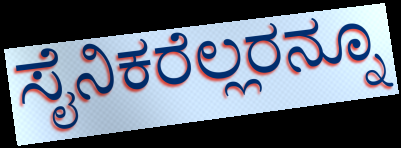
ಸೈನಿಕರೆಲ್ಲರನ್ನೂ